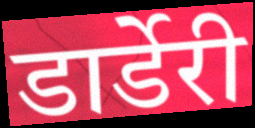
डार्डेरी